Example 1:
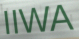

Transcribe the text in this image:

IIWA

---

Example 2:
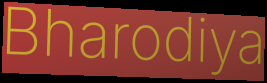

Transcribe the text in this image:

Bharodiya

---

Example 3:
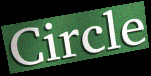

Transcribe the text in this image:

Circle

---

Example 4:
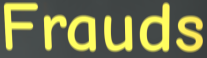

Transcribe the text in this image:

Frauds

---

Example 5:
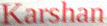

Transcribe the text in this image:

Karshan